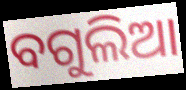
ବଗୁଲିଆ